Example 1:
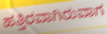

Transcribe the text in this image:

ಹತ್ತಿರವಾಗಿರುವಾಗ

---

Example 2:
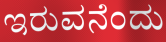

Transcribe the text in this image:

ಇರುವನೆಂದು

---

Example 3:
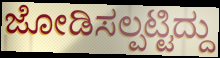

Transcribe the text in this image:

ಜೋಡಿಸಲ್ಪಟ್ಟಿದ್ದು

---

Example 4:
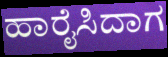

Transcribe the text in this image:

ಹಾರೈಸಿದಾಗ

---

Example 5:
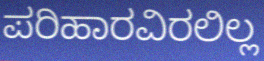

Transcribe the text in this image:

ಪರಿಹಾರವಿರಲಿಲ್ಲ